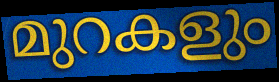
മുറകളും